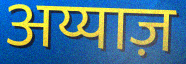
अय्याज़